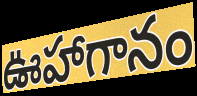
ఊహాగానం